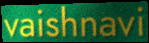
vaishnavi